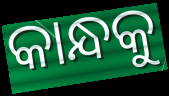
କାନ୍ଧକୁ